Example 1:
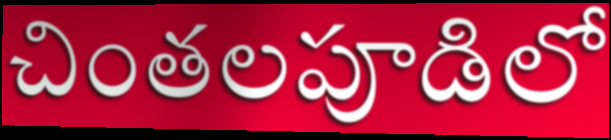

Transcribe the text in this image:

చింతలపూడిలో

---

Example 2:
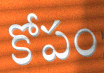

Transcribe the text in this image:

కోపం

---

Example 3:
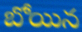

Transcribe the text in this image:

బోయిన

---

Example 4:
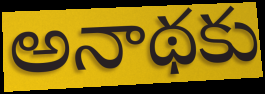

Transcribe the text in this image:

అనాథకు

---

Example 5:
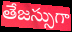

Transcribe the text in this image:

తేజస్సుగా